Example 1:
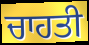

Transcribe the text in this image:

ਚਾਹਤੀ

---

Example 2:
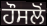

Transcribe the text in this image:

ਹੌਸਲੋਂ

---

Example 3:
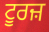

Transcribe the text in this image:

ਟੂਰਜ਼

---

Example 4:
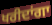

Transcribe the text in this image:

ਖਰੀਦਾਂਗਾ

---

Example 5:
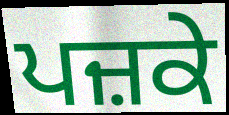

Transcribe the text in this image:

ਪਜ਼ਕੇ